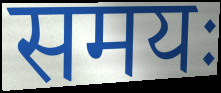
समयः